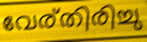
വേര്തിരിച്ചു